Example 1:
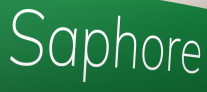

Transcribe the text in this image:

Saphore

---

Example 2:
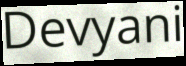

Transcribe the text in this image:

Devyani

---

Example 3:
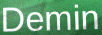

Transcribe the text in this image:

Demin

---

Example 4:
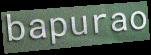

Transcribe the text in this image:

bapurao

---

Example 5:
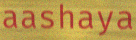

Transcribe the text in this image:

aashaya